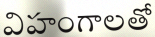
విహంగాలతో